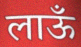
लाऊँ